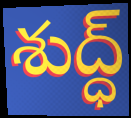
శుద్ధ్